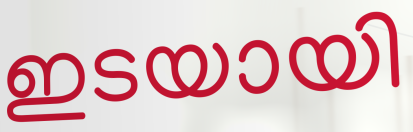
ഇടയായി